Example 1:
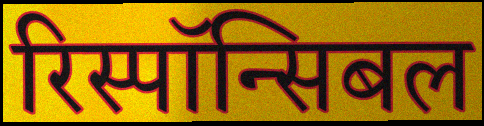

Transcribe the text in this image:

रिस्पॉन्सिबल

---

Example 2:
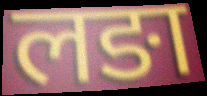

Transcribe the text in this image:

लङा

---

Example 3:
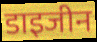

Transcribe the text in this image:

डाइजीन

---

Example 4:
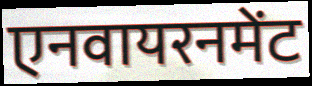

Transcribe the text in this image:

एनवायरनमेंट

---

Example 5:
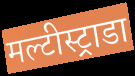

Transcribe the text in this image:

मल्टीस्ट्राडा